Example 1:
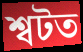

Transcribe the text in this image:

শ্বটত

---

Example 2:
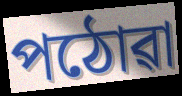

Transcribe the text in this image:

পঠোৱা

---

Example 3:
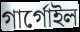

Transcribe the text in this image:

গাৰ্গোইল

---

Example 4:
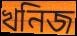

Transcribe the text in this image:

খনিজ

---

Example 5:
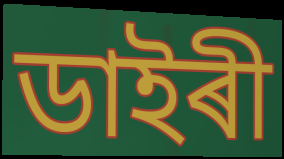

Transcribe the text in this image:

ডাইৰী